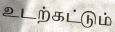
உடற்கட்டும்